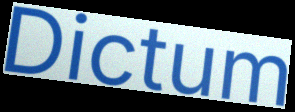
Dictum